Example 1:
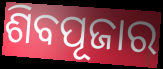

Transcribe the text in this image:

ଶିବପୂଜାର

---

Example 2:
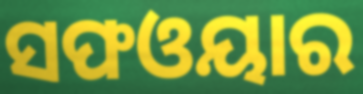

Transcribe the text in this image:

ସଫଓୟାର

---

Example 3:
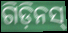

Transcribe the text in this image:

ଗିଡ଼ିନସ୍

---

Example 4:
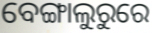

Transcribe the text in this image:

ବେଙ୍ଗାଲୁରୁରେ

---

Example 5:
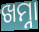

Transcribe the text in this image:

ଖମ୍ନା